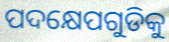
ପଦକ୍ଷେପଗୁଡିକୁ